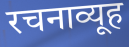
रचनाव्यूह